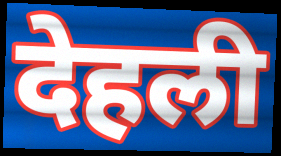
देहली